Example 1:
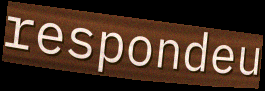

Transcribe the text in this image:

respondeu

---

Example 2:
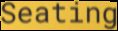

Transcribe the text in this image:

Seating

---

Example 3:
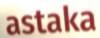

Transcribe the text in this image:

astaka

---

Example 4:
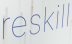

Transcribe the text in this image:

reskill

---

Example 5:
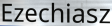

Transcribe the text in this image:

Ezechiasz